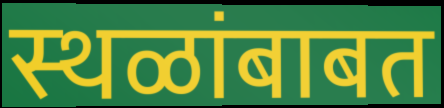
स्थळांबाबत